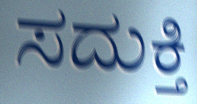
ಸದುಕ್ತಿ